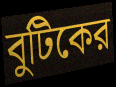
বুটিকের